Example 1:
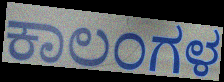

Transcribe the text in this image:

ಕಾಲಂಗಳ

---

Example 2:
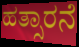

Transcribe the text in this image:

ಹತ್ಸಾರನೆ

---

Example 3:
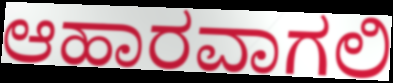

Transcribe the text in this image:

ಆಹಾರವಾಗಲಿ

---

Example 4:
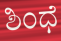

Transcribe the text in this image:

ಶಿಂಧೆ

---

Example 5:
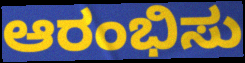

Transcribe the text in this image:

ಆರಂಭಿಸು